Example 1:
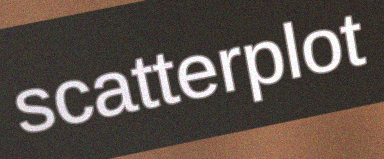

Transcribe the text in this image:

scatterplot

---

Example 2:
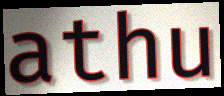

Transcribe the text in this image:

athu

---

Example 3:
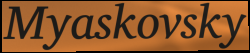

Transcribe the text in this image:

Myaskovsky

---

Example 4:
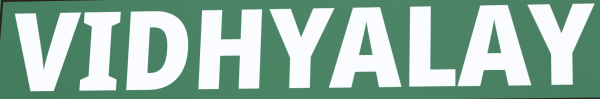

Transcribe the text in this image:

VIDHYALAY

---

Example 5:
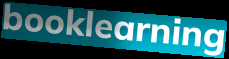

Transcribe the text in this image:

booklearning